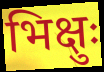
भिक्षुः